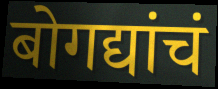
बोगद्यांचं